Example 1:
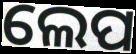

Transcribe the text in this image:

ଲେପ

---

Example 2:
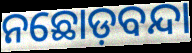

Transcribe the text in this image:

ନଛୋଡ଼ବନ୍ଦା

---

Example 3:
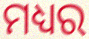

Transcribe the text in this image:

ମଧ୍ଯର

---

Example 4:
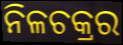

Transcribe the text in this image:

ନିଳଚକ୍ରର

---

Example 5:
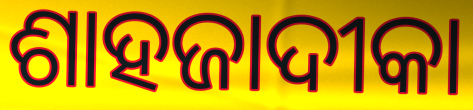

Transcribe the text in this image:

ଶାହଜାଦୀକା